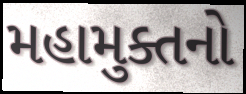
મહામુક્તનો